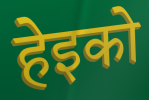
हेइको